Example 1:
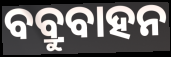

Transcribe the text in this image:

ବବ୍ରୁବାହନ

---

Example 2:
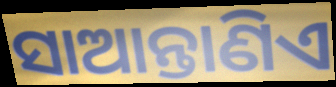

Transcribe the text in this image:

ସାଆନ୍ତାଣିଏ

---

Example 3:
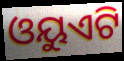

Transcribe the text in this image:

ଓୟୁଏଟି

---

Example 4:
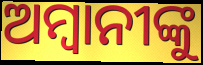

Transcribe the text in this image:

ଅମ୍ବାନୀଙ୍କୁ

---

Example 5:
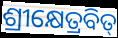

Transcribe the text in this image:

ଶ୍ରୀକ୍ଷେତ୍ରବିତ୍